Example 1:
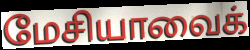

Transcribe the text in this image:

மேசியாவைக்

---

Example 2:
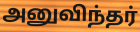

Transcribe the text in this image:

அனுவிந்தர்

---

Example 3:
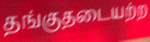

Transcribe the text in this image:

தங்குதடையற்ற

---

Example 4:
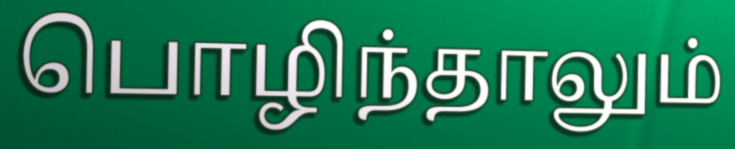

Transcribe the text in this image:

பொழிந்தாலும்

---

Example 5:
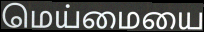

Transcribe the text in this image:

மெய்மையை